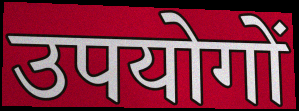
उपयोगों